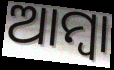
ଆମ୍ବା